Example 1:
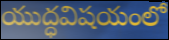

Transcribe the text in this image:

యుద్ధవిషయంలో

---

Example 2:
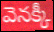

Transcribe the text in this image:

వెనక్కీ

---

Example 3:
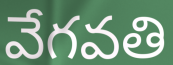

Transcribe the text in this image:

వేగవతి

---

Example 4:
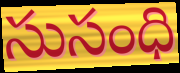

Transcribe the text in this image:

సుసంధి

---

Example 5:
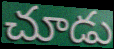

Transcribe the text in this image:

చూడు